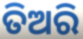
ତିଅରି